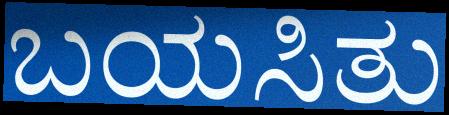
ಬಯಸಿತು